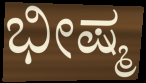
ಭೀಷ್ಮ